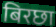
बिरछा